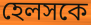
হেলসকে